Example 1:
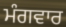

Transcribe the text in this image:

ਮੰਗਵਾਰ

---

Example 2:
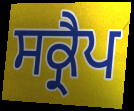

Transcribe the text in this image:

ਸਕ੍ਰੈਪ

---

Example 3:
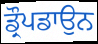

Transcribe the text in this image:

ਡ੍ਰੌਪਡਾਉਨ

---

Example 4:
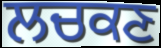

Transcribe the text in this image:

ਲਚਕਣ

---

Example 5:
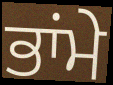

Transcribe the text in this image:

ਭਾਂਮੇ